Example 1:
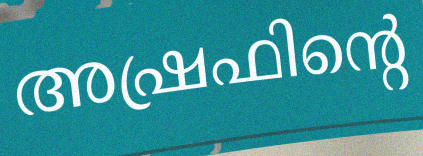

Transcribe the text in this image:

അഷ്രഫിന്റെ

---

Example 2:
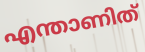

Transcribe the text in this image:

എന്താണിത്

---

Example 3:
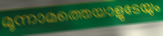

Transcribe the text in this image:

മൂന്നാമത്തെയാളുടേയും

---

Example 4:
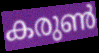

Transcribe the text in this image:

കരുൺ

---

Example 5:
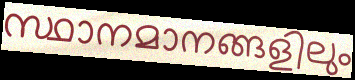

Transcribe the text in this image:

സ്ഥാനമാനങ്ങളിലും